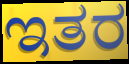
ಇತರ